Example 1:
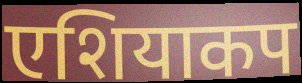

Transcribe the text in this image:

एशियाकप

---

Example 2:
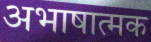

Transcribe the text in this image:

अभाषात्मक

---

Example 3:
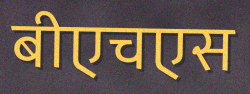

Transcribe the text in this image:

बीएचएस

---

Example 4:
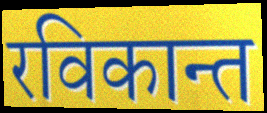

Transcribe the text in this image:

रविकान्त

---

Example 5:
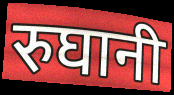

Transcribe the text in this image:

रुघानी